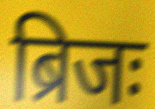
ब्रिजः